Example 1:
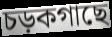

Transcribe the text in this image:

চড়কগাছে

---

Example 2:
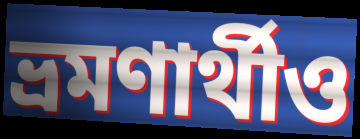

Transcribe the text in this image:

ভ্রমণার্থীও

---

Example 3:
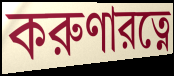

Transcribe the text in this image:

করুণারত্নে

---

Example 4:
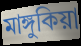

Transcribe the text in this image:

মাঙ্গুকিয়া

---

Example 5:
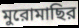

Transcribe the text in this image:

মুরোমাছির